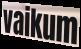
vaikum